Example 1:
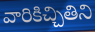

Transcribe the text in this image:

వారికిచ్చితిని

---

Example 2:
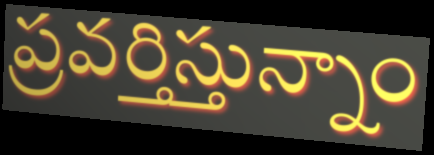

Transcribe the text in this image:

ప్రవర్తిస్తున్నాం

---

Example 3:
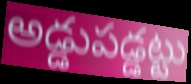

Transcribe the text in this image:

అడ్డుపడ్డట్టు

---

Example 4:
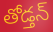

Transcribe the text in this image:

తోడ్తన్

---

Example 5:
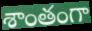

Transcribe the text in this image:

శాంతంగా